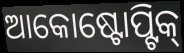
ଆକୋଷ୍ଟୋପ୍ଟିକ୍